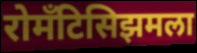
रोमँटिसिझमला